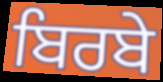
ਬਿਰਬੇ